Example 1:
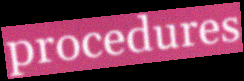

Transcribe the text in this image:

procedures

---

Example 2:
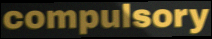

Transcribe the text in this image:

compulsory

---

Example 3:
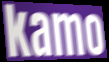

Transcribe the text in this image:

kamo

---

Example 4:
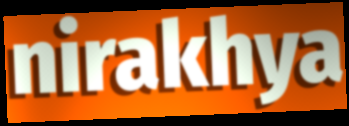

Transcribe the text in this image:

nirakhya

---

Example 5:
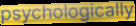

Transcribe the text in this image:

psychologically